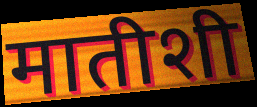
मातीशी